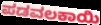
ಪಡವಲಕಾಯಿ